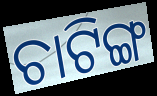
ଚାଟିଙ୍ଗ